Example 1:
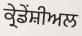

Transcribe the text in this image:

ਕ੍ਰੇਡੇਂਸ਼ੀਅਲ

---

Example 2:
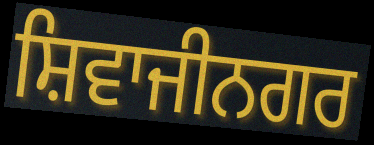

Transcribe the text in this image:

ਸ਼ਿਵਾਜੀਨਗਰ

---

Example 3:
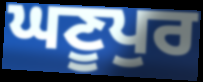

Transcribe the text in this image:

ਘਣੂਪੁਰ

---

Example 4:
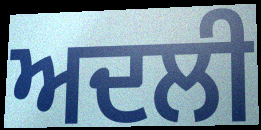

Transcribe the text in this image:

ਅਦਲੀ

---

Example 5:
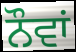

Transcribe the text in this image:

ਨੌਵਾਂ